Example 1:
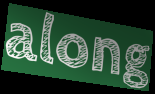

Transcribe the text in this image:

along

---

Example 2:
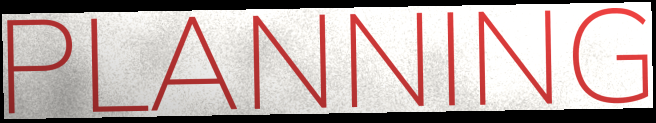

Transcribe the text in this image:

PLANNING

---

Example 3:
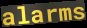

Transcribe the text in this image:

alarms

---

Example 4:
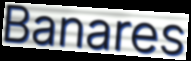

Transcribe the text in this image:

Banares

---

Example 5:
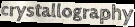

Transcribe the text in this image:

crystallography